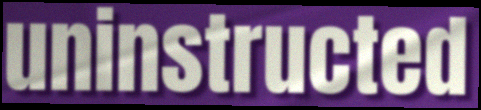
uninstructed